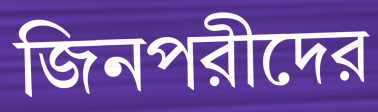
জিনপরীদের